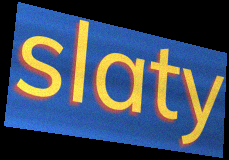
slaty